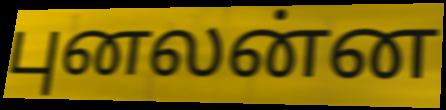
புனலன்ன